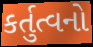
કર્તુત્વનો